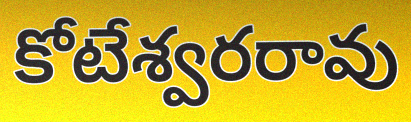
కోటేశ్వరరావు